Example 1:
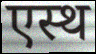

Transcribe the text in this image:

एस्थ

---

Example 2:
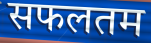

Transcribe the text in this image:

सफलतम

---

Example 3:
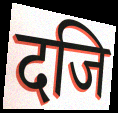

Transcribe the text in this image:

दजि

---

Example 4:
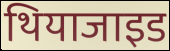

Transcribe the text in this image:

थियाजाइड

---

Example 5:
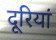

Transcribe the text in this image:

दूरियां